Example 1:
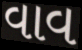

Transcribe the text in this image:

વાવ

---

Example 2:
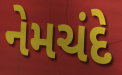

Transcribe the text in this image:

નેમચંદે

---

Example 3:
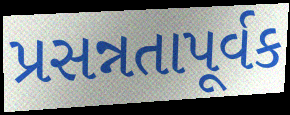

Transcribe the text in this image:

પ્રસન્નતાપૂર્વક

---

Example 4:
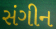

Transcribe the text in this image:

સંગીન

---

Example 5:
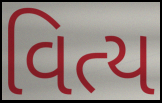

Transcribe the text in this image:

વિત્ય